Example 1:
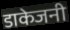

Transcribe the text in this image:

डाकेजनी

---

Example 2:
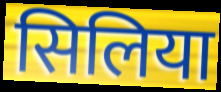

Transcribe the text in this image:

सिलिया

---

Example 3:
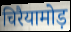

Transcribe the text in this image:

चिरैयामोड़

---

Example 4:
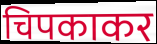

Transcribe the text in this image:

चिपकाकर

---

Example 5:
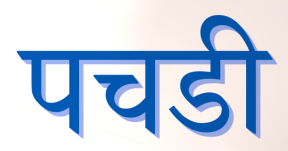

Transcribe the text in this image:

पचडी